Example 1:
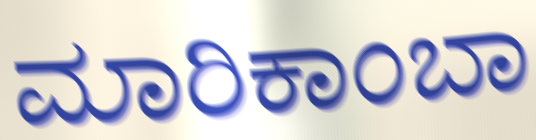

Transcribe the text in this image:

ಮಾರಿಕಾಂಬಾ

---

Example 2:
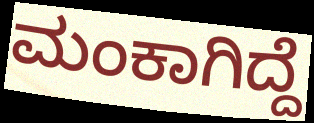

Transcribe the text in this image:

ಮಂಕಾಗಿದ್ದೆ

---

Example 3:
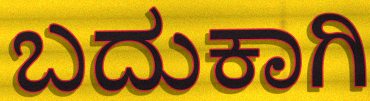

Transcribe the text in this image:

ಬದುಕಾಗಿ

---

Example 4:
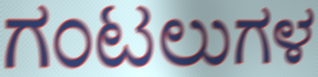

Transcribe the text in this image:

ಗಂಟಲುಗಳ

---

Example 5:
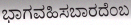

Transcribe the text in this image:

ಭಾಗವಹಿಸಬಾರದೆಂಬ